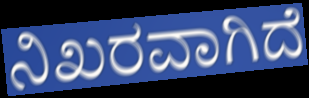
ನಿಖರವಾಗಿದೆ